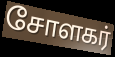
சோளகர்